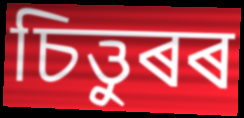
চিত্তুৰৰ